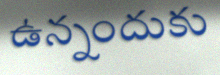
ఉన్నందుకు